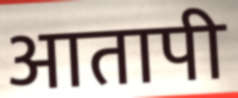
आतापी